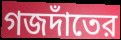
গজদাঁতের